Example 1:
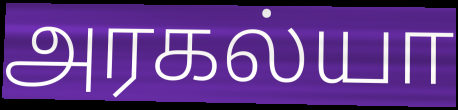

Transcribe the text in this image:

அரகல்யா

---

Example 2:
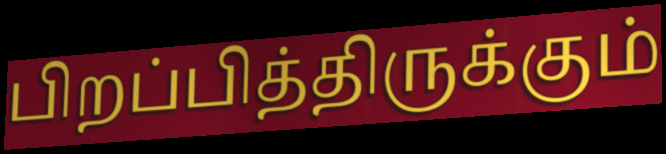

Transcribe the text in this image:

பிறப்பித்திருக்கும்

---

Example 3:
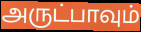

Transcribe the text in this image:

அருட்பாவும்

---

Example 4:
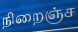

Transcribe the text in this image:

நிறைஞ்ச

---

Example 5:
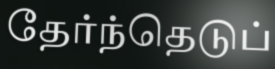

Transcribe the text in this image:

தேர்ந்தெடுப்